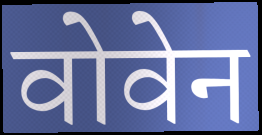
वोवेन